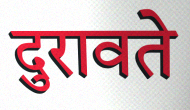
दुरावते